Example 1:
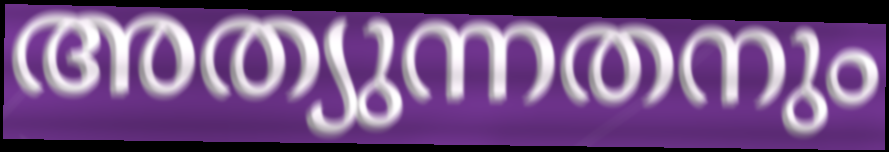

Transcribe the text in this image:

അത്യുന്നതനും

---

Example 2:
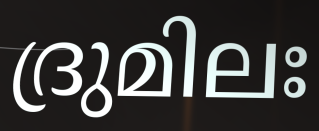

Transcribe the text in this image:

ദ്രുമിലഃ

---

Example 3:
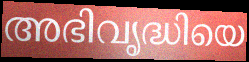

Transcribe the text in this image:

അഭിവൃദ്ധിയെ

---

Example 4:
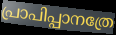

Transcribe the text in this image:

പ്രാപിപ്പാനത്രേ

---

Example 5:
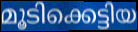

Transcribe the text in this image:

മൂടിക്കെട്ടിയ